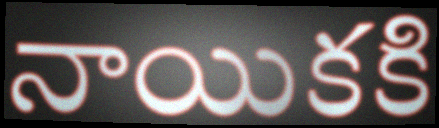
నాయికకి